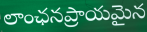
లాంఛనప్రాయమైన